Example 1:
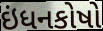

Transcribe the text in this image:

ઇંધનકોષો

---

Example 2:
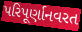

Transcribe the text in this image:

પરિપૂર્ણાનવરત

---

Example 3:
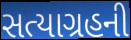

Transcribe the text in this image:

સત્યાગ્રહની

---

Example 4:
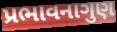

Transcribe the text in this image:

પ્રભાવનાગુણ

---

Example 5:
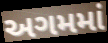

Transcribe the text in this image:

અગમમાં